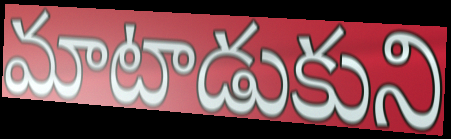
మాటాడుకుని